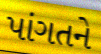
પાંગતને